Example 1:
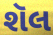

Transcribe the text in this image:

શૅલ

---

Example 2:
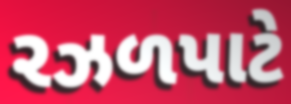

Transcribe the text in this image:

રઝળપાટે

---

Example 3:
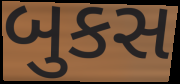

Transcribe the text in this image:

બુકસ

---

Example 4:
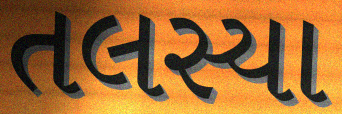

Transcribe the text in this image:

તલસ્યા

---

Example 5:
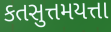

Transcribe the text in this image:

કતસુત્તમયત્તા